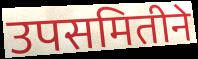
उपसमितीने